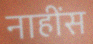
नाहींस